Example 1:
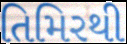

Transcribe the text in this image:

તિમિરથી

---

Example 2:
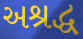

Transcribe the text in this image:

અશ્રદ્ધ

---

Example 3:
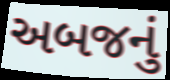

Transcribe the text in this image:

અબજનું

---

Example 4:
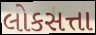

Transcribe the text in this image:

લોકસત્તા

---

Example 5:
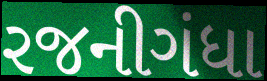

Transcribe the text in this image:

રજનીગંધા